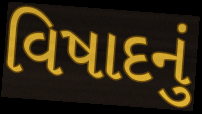
વિષાદનું